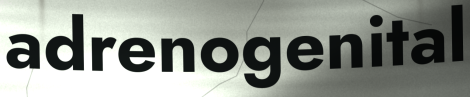
adrenogenital